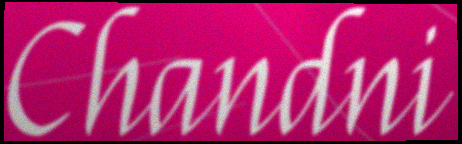
Chandni